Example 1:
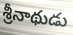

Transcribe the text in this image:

శ్రీనాథుడు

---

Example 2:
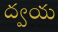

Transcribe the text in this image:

ద్వయ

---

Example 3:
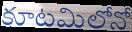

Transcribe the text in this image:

కూటమిలోనో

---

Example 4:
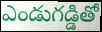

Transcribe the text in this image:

ఎండుగడ్డితో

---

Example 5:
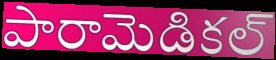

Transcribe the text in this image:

పారామెడికల్